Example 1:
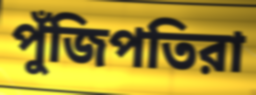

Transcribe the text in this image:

পুঁজিপতিরা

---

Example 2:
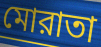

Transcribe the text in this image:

মোরাতা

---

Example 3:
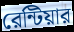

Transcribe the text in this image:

রেন্টিয়ার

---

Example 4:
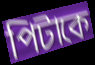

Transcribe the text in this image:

পিটাকে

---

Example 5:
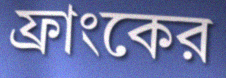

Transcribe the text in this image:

ফ্রাংকের